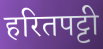
हरितपट्टी